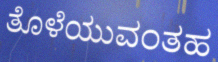
ತೊಳೆಯುವಂತಹ